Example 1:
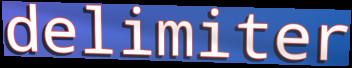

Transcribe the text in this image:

delimiter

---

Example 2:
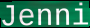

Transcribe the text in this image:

Jenni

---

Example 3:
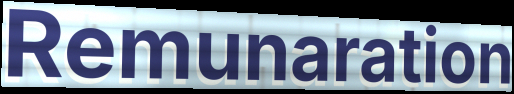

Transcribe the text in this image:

Remunaration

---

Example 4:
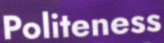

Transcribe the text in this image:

Politeness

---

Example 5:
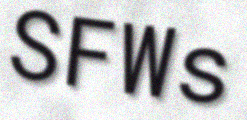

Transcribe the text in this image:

SFWs